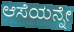
ಆಸೆಯನ್ನೇ